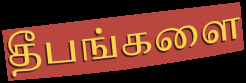
தீபங்களை